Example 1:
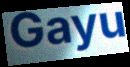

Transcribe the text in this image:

Gayu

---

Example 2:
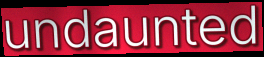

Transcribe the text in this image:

undaunted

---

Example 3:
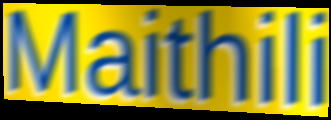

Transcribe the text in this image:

Maithili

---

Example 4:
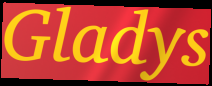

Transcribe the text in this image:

Gladys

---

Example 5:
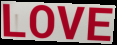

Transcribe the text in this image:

LOVE